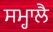
ਸਮ੍ਹ੍ਹਾਲੈ